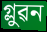
গ্লুৱন